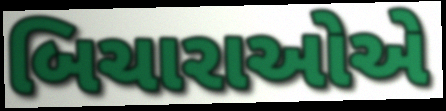
બિચારાઓએ